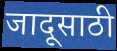
जादूसाठी